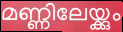
മണ്ണിലേയ്ക്കും